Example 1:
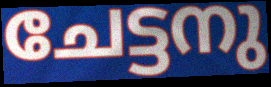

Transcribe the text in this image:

ചേട്ടനു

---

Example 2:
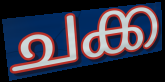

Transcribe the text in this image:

ചക്ക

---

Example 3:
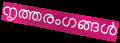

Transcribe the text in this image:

നൃത്തരംഗങ്ങൾ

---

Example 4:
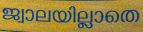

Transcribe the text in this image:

ജ്വാലയില്ലാതെ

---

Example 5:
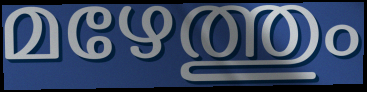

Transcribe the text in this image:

മഴേത്തും